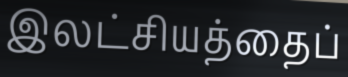
இலட்சியத்தைப்